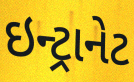
ઇન્ટ્રાનેટ